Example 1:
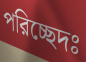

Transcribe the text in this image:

পরিচ্ছেদঃ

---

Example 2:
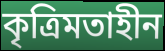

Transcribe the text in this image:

কৃত্রিমতাহীন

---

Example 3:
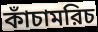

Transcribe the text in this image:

কাঁচামরিচ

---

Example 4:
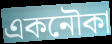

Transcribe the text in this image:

একনৌকা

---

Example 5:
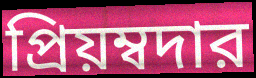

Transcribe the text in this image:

প্রিয়ম্বদার